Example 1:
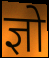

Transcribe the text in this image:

ज्ञो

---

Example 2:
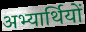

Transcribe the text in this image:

अभ्‍यार्थियों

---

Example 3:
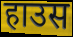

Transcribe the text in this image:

हाउस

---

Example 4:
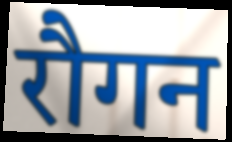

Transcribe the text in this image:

रौगन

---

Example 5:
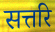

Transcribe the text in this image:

सत्तरि